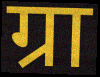
ग्रा